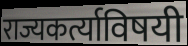
राज्यकर्त्याविषयी